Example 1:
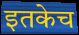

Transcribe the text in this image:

इतकेच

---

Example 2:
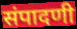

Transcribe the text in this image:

संपादणी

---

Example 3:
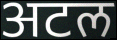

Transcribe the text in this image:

अटल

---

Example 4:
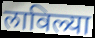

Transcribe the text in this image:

लाविल्या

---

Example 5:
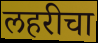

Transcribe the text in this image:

लहरीचा